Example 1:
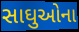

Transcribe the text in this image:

સાઘુઓના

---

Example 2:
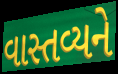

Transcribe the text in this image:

વાસ્તવ્યને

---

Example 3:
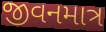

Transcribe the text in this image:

જીવનમાત્ર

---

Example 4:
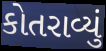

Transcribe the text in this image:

કોતરાવ્યું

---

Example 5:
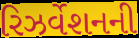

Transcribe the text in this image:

રિઝર્વેશનની